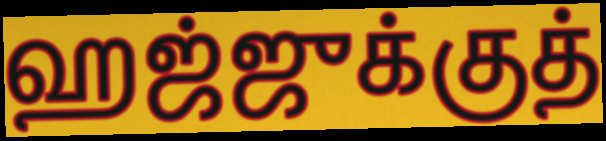
ஹஜ்ஜுக்குத்